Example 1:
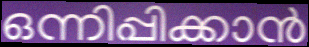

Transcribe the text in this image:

ഒന്നിപ്പിക്കാൻ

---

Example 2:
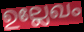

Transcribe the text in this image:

ഉല്ലേഖം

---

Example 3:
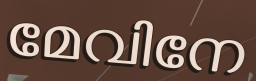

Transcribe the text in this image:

മേവിനേ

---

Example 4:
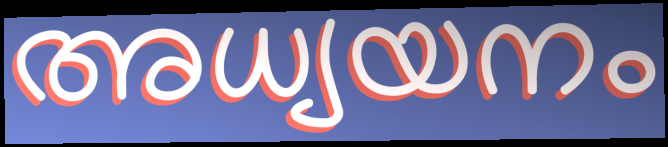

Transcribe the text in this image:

അധ്യയനം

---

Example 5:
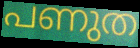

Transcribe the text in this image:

പണുത